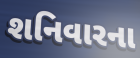
શનિવારના